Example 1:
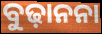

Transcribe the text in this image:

ବୁଢ଼ାନନା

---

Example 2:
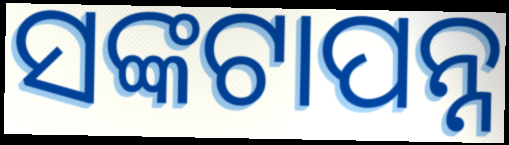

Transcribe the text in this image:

ସଙ୍କଟାପନ୍ନ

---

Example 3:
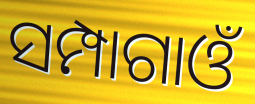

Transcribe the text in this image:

ସମ୍ପାଗାଓଁ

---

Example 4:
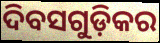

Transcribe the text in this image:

ଦିବସଗୁଡ଼ିକର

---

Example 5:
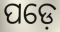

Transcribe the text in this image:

ପଡ଼େ